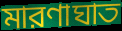
মারণাঘাত